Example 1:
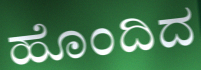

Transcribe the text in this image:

ಹೊಂದಿದ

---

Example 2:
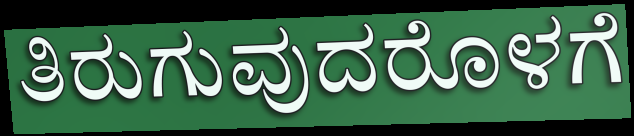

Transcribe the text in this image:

ತಿರುಗುವುದರೊಳಗೆ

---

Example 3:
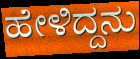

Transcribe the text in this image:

ಹೇಳಿದ್ದನು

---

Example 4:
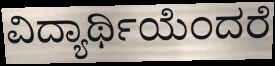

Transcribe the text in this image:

ವಿದ್ಯಾರ್ಥಿಯೆಂದರೆ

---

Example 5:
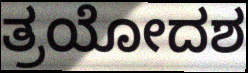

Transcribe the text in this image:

ತ್ರಯೋದಶ